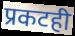
प्रकटही